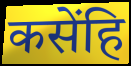
कसेंहि